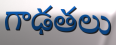
గాఢతలు